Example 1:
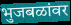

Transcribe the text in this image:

भुजबळांवर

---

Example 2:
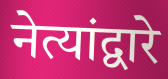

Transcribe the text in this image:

नेत्यांद्वारे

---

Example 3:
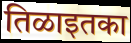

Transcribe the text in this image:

तिळाइतका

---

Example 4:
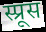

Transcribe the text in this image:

स्प्रूस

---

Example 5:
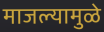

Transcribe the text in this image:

माजल्यामुळे